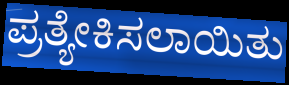
ಪ್ರತ್ಯೇಕಿಸಲಾಯಿತು